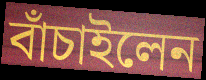
বাঁচাইলেন